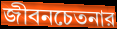
জীবনচেতনার